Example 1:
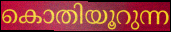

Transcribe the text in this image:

കൊതിയൂറുന്ന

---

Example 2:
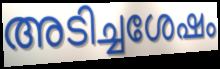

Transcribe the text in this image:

അടിച്ചശേഷം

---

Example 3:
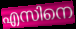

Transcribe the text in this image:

എസിനെ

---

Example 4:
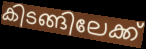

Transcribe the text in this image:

കിടങ്ങിലേക്ക്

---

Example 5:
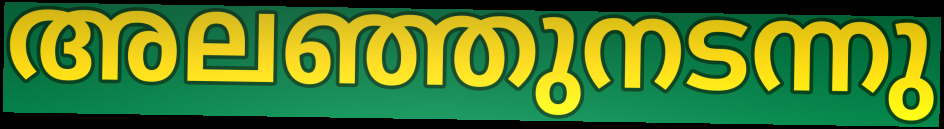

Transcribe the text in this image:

അലഞ്ഞുനടന്നു